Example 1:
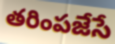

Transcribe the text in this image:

తరింపజేసే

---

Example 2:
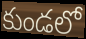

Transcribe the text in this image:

కుండలో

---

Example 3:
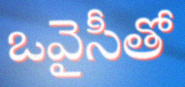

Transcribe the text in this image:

ఒవైసీతో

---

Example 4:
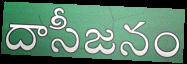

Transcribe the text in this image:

దాసీజనం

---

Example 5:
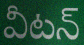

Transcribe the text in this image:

వీటన్